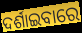
ଦର୍ଶାଇବାରେ